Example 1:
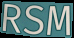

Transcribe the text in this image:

RSM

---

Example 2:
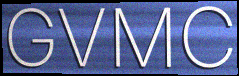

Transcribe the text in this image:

GVMC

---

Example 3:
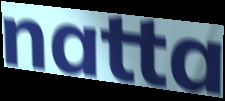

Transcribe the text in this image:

natta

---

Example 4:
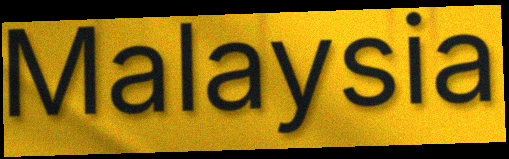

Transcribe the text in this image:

Malaysia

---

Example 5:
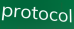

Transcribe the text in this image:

protocol